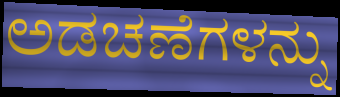
ಅಡಚಣೆಗಳನ್ನು